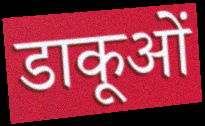
डाकूओं